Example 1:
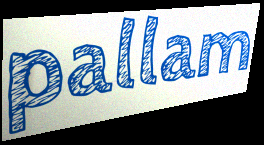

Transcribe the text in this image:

pallam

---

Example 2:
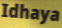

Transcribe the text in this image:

Idhaya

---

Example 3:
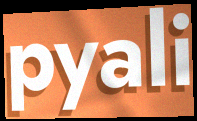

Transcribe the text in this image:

pyali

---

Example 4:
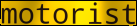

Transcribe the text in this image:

motorist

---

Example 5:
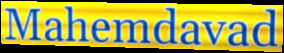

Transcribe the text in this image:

Mahemdavad